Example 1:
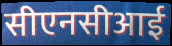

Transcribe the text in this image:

सीएनसीआई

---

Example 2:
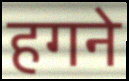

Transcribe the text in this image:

हगने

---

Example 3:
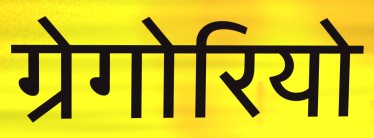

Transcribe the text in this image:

ग्रेगोरियो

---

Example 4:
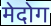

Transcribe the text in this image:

मेदोग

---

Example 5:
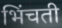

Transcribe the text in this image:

भिंचती